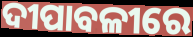
ଦୀପାବଳୀରେ